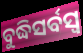
ବୁଦ୍ଧିସର୍ବସ୍ୱ